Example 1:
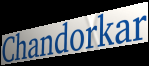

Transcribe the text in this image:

Chandorkar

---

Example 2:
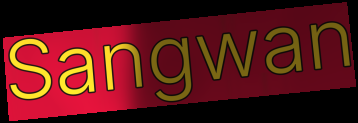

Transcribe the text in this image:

Sangwan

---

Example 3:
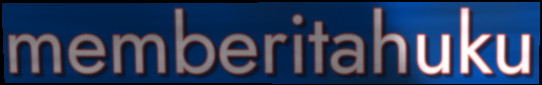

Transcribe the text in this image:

memberitahuku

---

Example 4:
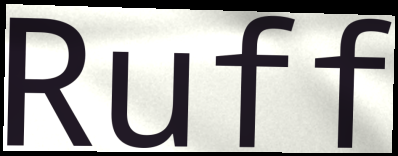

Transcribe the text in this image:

Ruff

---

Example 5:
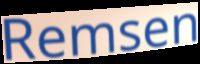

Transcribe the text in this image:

Remsen